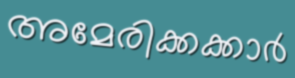
അമേരിക്കക്കാർ